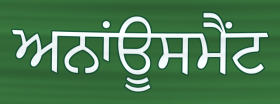
ਅਨਾਂਊਸਮੈਂਟ